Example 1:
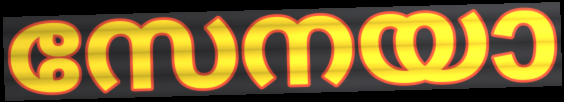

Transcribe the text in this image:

സേനയാ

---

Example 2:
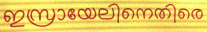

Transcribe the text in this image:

ഇസ്രായേലിനെതിരെ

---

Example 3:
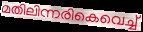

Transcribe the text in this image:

മതിലിന്നരികെവെച്ച്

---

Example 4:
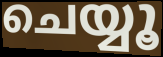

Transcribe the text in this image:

ചെയ്യൂ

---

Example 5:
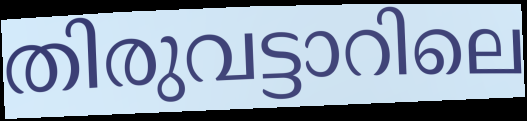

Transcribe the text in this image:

തിരുവട്ടാറിലെ